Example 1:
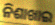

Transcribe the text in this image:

ନିଶାଖାଇ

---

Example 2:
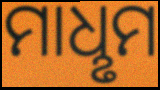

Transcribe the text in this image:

ମାଧୢମ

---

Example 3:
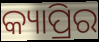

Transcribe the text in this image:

କ୍ୟାପ୍ରିର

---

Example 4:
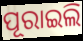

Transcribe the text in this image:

ପୂରାଇଲି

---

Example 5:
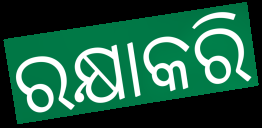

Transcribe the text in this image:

ରକ୍ଷାକରି